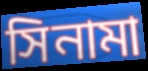
সিনামা